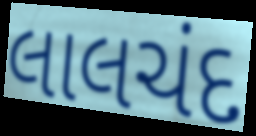
લાલચંદ